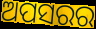
ଅପସରର